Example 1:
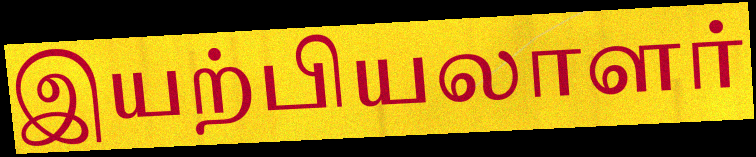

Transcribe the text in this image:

இயற்பியலாளர்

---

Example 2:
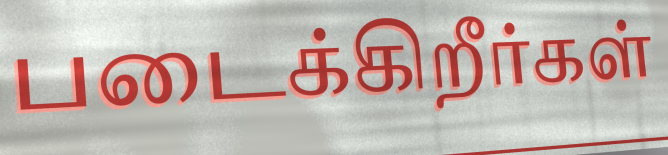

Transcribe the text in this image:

படைக்கிறீர்கள்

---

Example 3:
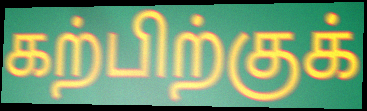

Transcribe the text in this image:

கற்பிற்குக்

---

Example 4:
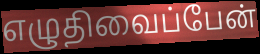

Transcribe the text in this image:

எழுதிவைப்பேன்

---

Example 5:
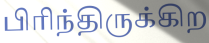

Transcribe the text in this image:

பிரிந்திருக்கிற